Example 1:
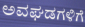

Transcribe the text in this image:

ಅವಘಡಗಳಿಗೆ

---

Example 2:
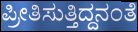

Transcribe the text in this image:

ಪ್ರೀತಿಸುತ್ತಿದ್ದನಂತೆ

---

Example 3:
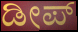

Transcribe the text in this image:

ಡೀಪ್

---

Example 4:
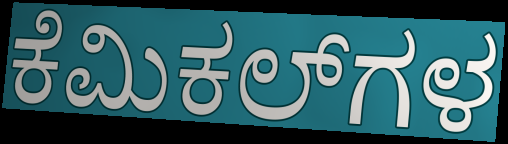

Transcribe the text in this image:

ಕೆಮಿಕಲ್‌ಗಳ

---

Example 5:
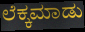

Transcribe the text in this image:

ಲೆಕ್ಕಮಾಡು